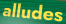
alludes